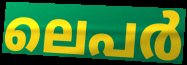
ലെപർ